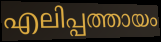
എലിപ്പത്തായം